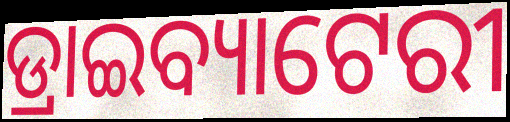
ଡ୍ରାଇବ୍ୟାଟେରୀ